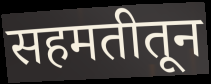
सहमतीतून